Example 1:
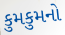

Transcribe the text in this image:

કુમકુમનો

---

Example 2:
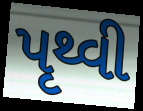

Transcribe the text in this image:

પૃથ્વી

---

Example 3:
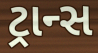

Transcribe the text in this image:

ટ્રાન્સ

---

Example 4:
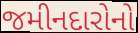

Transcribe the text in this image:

જમીનદારોનો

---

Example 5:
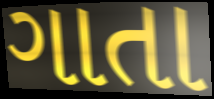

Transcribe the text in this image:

ગાતા